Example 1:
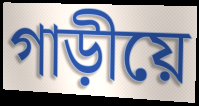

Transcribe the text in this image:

গাড়ীয়ে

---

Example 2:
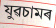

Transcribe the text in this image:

যুৱচামৰ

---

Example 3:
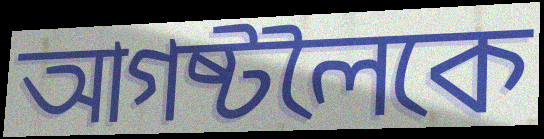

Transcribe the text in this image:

আগষ্টলৈকে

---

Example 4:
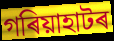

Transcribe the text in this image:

গৰিয়াহাটৰ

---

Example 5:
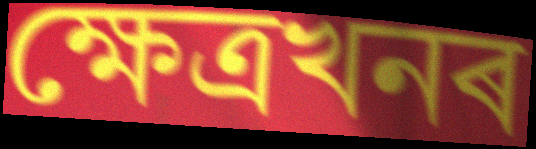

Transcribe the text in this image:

ক্ষেত্ৰখনৰ